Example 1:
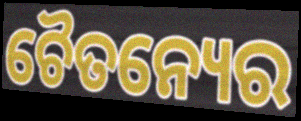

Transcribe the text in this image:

ଚୈତନ୍ୟେର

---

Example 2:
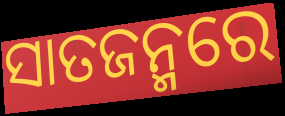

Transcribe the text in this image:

ସାତଜନ୍ମରେ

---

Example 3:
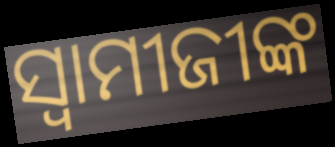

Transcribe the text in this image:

ସ୍ଵାମୀଜୀଙ୍କ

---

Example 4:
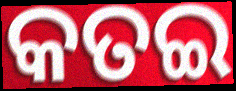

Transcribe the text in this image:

କତଇ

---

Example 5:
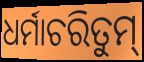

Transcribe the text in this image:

ଧର୍ମାଚରିତୁମ୍